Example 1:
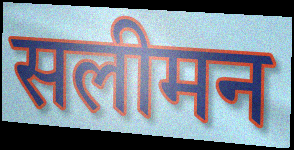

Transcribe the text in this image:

सलीमन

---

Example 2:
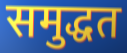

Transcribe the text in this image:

समुद्धत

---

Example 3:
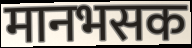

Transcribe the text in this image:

मानभसक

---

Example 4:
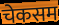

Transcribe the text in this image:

चेकसम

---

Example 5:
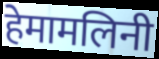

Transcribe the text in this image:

हेमामलिनी